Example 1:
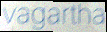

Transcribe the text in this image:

vagartha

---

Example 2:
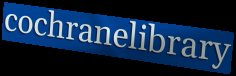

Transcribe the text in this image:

cochranelibrary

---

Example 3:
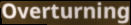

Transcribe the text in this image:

Overturning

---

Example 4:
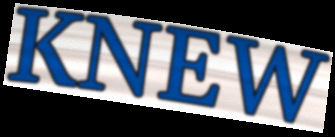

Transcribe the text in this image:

KNEW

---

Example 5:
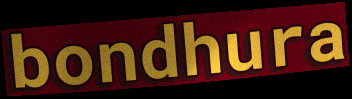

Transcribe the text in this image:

bondhura